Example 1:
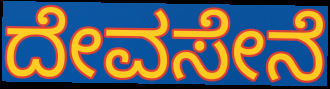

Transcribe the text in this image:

ದೇವಸೇನೆ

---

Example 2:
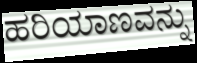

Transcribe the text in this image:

ಹರಿಯಾಣವನ್ನು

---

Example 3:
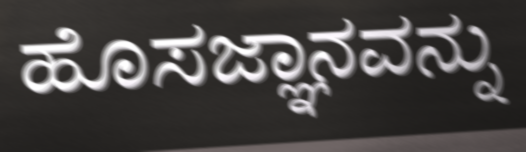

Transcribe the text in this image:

ಹೊಸಜ್ಞಾನವನ್ನು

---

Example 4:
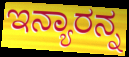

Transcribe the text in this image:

ಇನ್ಯಾರನ್ನ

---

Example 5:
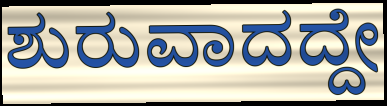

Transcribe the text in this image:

ಶುರುವಾದದ್ದೇ